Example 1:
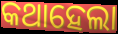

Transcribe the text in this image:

କଥାହେଲା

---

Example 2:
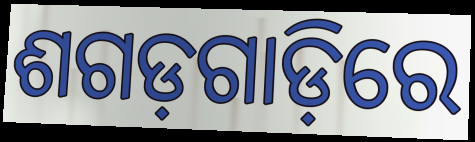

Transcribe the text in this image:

ଶଗଡ଼ଗାଡ଼ିରେ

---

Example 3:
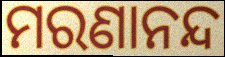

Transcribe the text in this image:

ମରଣାନନ୍ଦ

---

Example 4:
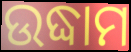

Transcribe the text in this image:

ଉଦ୍ଧାମ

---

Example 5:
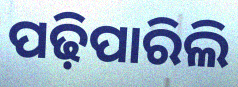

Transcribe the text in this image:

ପଢ଼ିପାରିଲି